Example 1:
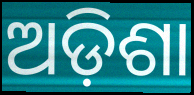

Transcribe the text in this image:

ଅଡ଼ିଶା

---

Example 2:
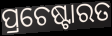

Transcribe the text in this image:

ପ୍ରଚେଷ୍ଟାରତ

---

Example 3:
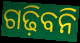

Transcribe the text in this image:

ଗଢ଼ିବନି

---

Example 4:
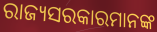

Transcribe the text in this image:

ରାଜ୍ୟସରକାରମାନଙ୍କ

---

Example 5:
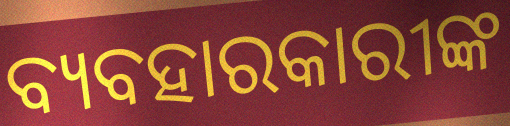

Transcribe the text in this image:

ବ୍ୟବହାରକାରୀଙ୍କ